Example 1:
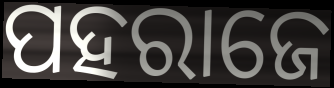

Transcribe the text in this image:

ପହରାଜେ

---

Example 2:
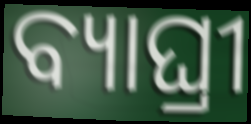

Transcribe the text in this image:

ବ୍ୟାଘ୍ରୀ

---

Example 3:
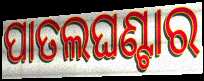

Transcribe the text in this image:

ପାତଲଘଣ୍ଟାର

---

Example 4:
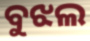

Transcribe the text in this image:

ବୁଝଲ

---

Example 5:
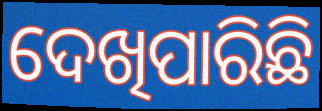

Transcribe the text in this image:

ଦେଖିପାରିଛି